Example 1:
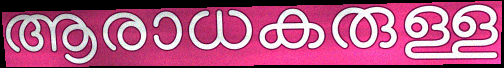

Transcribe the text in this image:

ആരാധകരുള്ള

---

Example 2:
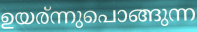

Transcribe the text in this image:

ഉയര്ന്നുപൊങ്ങുന്ന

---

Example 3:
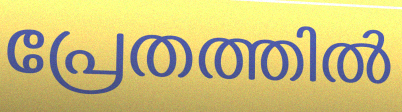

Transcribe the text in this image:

പ്രേതത്തിൽ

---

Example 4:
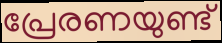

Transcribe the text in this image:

പ്രേരണയുണ്ട്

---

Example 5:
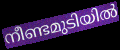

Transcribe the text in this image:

നീണ്ടമുടിയിൽ